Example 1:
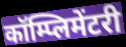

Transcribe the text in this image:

कॉम्प्लिमेंटरी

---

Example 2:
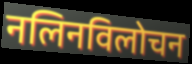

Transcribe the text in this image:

नलिनविलोचन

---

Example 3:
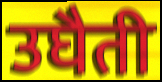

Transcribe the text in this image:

उघैती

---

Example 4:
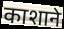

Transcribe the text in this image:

काशाने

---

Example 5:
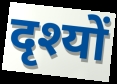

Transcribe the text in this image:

दृश्यों